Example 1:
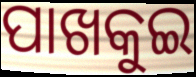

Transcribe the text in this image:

ପାଖକୁଇ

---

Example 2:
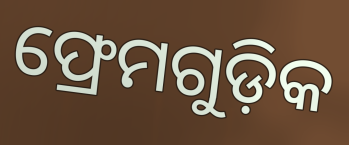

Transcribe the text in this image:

ଫ୍ରେମଗୁଡ଼ିକ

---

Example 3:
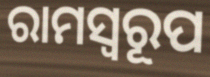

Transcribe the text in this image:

ରାମସ୍ୱରୂପ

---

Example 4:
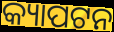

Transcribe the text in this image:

କ୍ୟାପଟନ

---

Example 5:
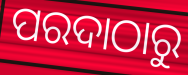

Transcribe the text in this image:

ପରଦାଠାରୁ